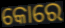
କୋରେ